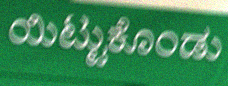
ಯಿಟ್ಟುಕೊಂಡು